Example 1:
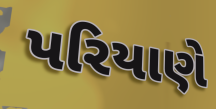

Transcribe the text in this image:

પરિયાણે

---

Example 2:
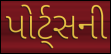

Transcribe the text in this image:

પોર્ટ્સની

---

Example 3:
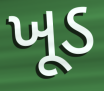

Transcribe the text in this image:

ખૂડ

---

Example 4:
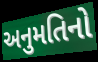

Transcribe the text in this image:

અનુમતિનો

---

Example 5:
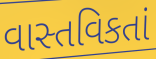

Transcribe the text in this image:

વાસ્તવિકતાં